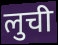
लुची